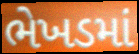
ભેખડમાં